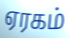
ஏரகம்